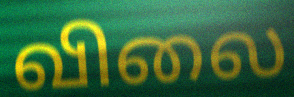
விலை